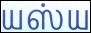
யஸ்ய